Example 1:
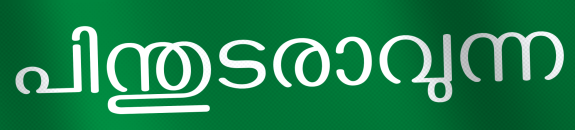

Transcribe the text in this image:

പിന്തുടരാവുന്ന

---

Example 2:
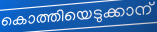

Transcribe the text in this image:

കൊത്തിയെടുക്കാന്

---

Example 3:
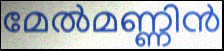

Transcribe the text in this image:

മേൽമണ്ണിൻ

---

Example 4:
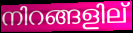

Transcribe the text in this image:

നിറങ്ങളില്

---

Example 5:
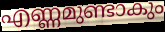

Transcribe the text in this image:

എണ്ണമുണ്ടാകും